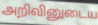
அறிவினுடைய